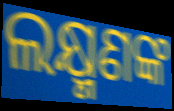
ଲକ୍ଷ୍ମଣଙ୍କ